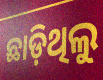
ଛାଡ଼ିଥିଲୁ